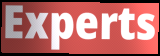
Experts